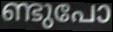
ണ്ടുപോ